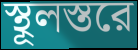
স্থূলস্তরে